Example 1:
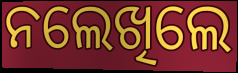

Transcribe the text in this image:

ନଲେଖିଲେ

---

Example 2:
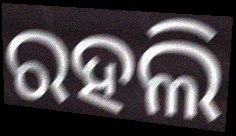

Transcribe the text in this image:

ରହଲି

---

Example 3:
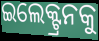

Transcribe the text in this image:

ଇଲେକ୍ଟ୍ରନକୁ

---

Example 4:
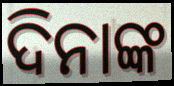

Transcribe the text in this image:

ଦିନାଙ୍କ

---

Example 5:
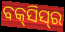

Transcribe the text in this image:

ବକ୍‌ସିସ୍‌ର